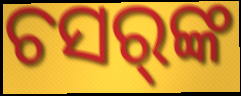
ଚସର୍‌ଙ୍କ